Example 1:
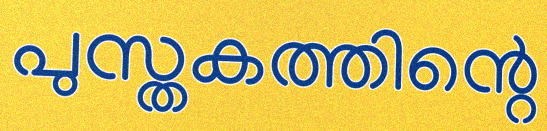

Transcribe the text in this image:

പുസ്തകത്തിന്റെ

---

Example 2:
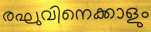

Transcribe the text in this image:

രഘുവിനെക്കാളും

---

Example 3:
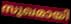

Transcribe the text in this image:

സുഖമായി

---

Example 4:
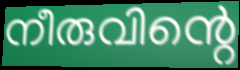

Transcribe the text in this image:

നീരുവിന്റെ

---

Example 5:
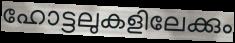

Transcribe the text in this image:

ഹോട്ടലുകളിലേക്കും